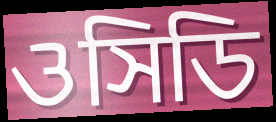
ওসিডি